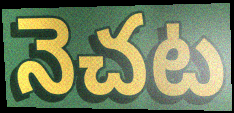
నెచట